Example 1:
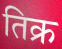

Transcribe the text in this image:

तिक्र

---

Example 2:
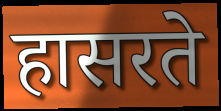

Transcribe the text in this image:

हासरते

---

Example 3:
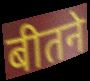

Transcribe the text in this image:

बीतने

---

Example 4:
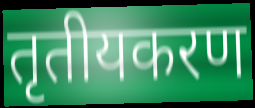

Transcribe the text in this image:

तृतीयकरण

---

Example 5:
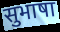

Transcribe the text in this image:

सुभाषा